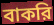
বাকরি